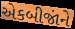
એકબીજાંને